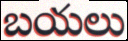
బయలు